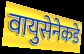
वायुसेनेकडे